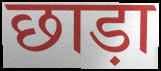
छाड़ा